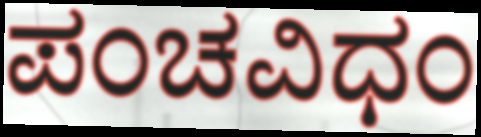
ಪಂಚವಿಧಂ